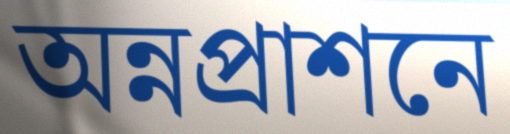
অন্নপ্রাশনে